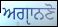
ਅਗੵਾਨਣੋ